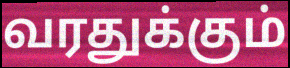
வரதுக்கும்